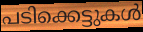
പടിക്കെട്ടുകൾ